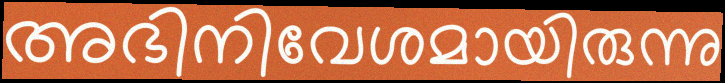
അഭിനിവേശമായിരുന്നു